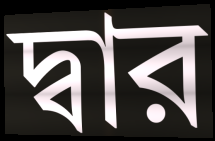
দ্বার